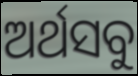
ଅର୍ଥସବୁ